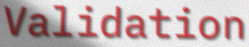
Validation